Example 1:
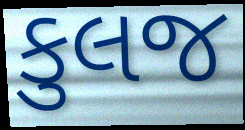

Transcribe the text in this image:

કુલજ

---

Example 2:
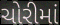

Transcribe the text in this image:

ચોરીમાં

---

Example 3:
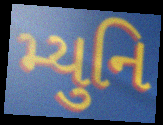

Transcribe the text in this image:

મ્યુનિ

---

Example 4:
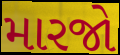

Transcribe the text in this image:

મારજો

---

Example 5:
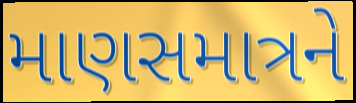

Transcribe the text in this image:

માણસમાત્રને